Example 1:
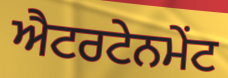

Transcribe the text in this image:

ਐਟਰਟੇਨਮੇਂਟ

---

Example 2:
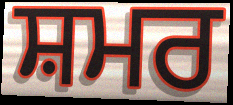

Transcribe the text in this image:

ਸ਼ਮਰ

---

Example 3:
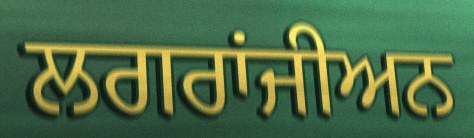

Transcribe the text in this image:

ਲਗਰਾਂਜੀਅਨ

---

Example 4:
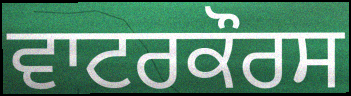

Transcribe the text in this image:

ਵਾਟਰਕੌਰਸ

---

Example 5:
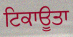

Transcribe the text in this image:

ਟਿਕਾਊਤਾ